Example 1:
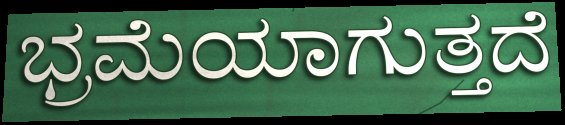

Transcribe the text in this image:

ಭ್ರಮೆಯಾಗುತ್ತದೆ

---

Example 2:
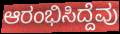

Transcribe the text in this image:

ಆರಂಭಿಸಿದ್ದೆವು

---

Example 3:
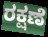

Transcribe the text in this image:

ರಕ್ಷಣೆ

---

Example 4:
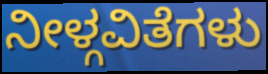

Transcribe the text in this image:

ನೀಳ್ಗವಿತೆಗಳು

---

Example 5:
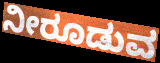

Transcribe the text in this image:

ನೀರೂಡುವ